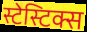
स्टेस्टिक्स